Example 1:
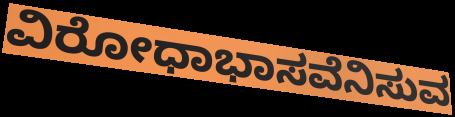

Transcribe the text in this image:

ವಿರೋಧಾಭಾಸವೆನಿಸುವ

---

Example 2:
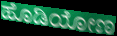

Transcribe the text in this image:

ಹೊಡಿಯೋಣ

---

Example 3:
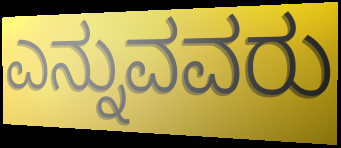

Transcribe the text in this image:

ಎನ್ನುವವರು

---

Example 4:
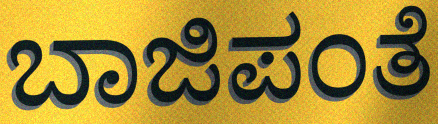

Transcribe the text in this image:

ಬಾಜಿಪಂತೆ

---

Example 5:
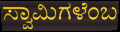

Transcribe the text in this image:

ಸ್ವಾಮಿಗಳೆಂಬ